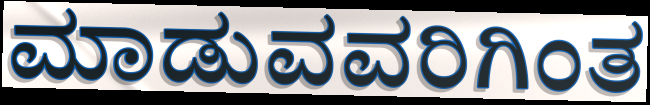
ಮಾಡುವವರಿಗಿಂತ